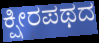
ಕ್ಷೀರಪಥದ